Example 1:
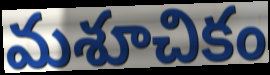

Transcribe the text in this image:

మశూచికం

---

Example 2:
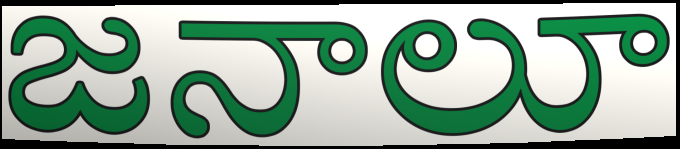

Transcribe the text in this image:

జనాలూ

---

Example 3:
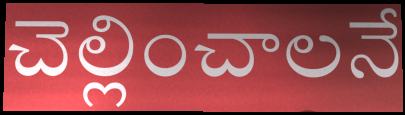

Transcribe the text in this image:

చెల్లించాలనే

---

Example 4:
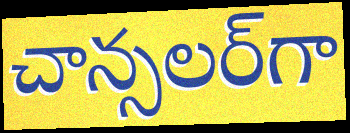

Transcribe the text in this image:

చాన్సలర్‌గా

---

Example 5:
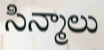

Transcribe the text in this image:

సిన్మాలు